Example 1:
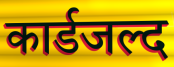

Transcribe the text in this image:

कार्डजल्द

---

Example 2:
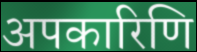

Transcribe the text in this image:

अपकारिणि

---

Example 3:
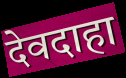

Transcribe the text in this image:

देवदाहा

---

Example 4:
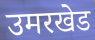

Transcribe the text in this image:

उमरखेड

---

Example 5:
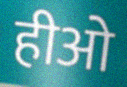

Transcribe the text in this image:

हीओ